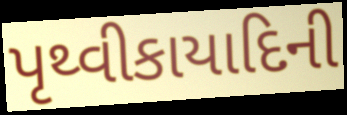
પૃથ્વીકાયાદિની